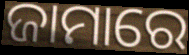
ଜାମାରେ